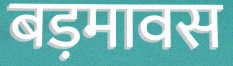
बड़मावस